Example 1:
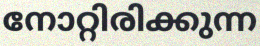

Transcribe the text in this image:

നോറ്റിരിക്കുന്ന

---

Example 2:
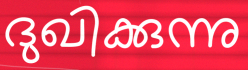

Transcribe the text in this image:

ദുഖിക്കുന്നു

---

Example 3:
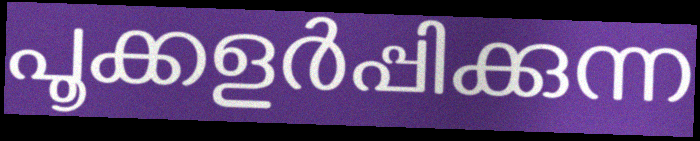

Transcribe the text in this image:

പൂക്കളർപ്പിക്കുന്ന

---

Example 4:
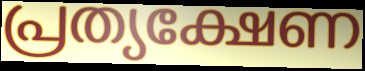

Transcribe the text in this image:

പ്രത്യക്ഷേണ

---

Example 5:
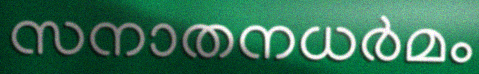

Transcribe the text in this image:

സനാതനധർമം